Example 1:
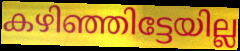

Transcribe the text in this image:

കഴിഞ്ഞിട്ടേയില്ല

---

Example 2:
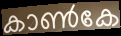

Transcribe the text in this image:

കാൺകേ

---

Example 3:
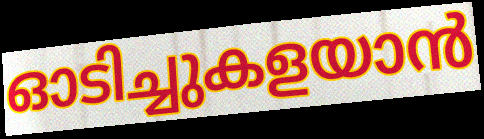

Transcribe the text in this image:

ഓടിച്ചുകളയാൻ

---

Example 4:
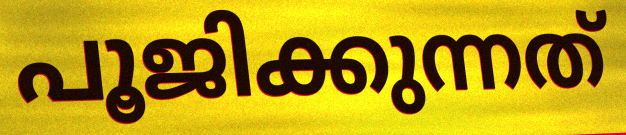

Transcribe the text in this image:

പൂജിക്കുന്നത്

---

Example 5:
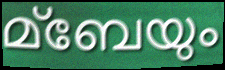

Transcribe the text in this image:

മ്ബേയും